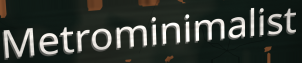
Metrominimalist